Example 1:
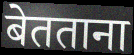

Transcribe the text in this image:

बेतताना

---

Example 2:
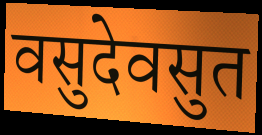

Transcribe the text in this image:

वसुदेवसुत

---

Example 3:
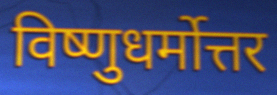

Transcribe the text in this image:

विष्णुधर्मोत्तर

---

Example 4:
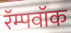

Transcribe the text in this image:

रॅम्पवॉक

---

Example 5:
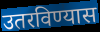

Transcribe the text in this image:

उतरविण्यास